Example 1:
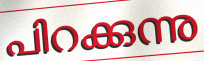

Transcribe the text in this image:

പിറക്കുന്നു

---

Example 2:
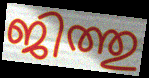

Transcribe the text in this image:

ജിത്തു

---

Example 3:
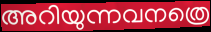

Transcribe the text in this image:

അറിയുന്നവനത്രെ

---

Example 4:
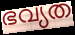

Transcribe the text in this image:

ഭവ്യത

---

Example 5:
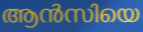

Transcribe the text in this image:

ആൻസിയെ